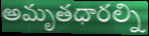
అమృతధారల్ని